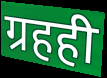
ग्रहही